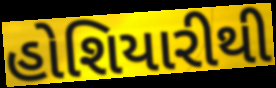
હોશિયારીથી